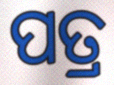
ପତ୍ର